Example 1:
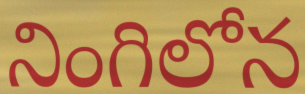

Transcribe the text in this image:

నింగిలోన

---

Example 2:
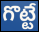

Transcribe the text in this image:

గొట్టే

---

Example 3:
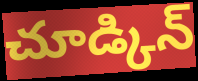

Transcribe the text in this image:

చూడ్కిన్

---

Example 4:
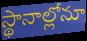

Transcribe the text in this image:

స్థానాల్లోనూ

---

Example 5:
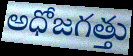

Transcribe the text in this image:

అధోజగత్తు